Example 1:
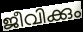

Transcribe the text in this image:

ജീവിക്കും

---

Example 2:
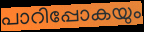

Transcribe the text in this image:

പാറിപ്പോകയും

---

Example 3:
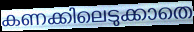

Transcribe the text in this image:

കണക്കിലെടുക്കാതെ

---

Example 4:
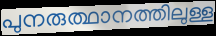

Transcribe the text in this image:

പുനരുത്ഥാനത്തിലുള്ള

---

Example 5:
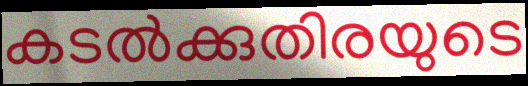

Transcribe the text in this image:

കടൽക്കുതിരയുടെ